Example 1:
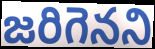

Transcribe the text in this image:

జరిగెనని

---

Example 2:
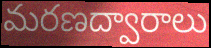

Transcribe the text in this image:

మరణద్వారాలు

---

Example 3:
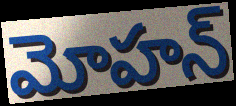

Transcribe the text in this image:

మోహన్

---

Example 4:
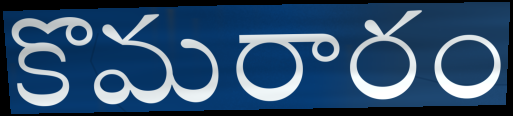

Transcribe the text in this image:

కొమరారం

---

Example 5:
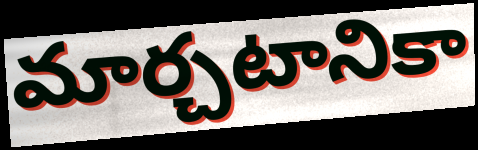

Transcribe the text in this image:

మార్చటానికా